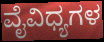
ವೈವಿಧ್ಯಗಳ